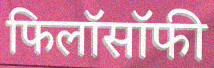
फिलॉसॉफी